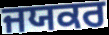
ਜਯਕਰ